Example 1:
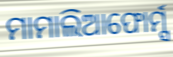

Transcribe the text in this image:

ମାମାଲିଆଫୋର୍ମ୍ସ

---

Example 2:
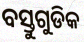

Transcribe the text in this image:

ବସ୍ତୁଗୁଡିକ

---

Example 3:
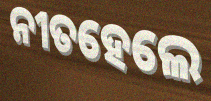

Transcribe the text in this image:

ନୀତହେଲେ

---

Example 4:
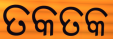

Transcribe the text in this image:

ତକତକ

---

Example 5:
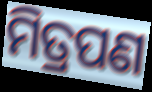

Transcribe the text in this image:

ମିତ୍ରପଣ